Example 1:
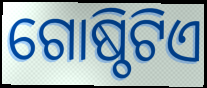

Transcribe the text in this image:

ଗୋଷ୍ଠିଟିଏ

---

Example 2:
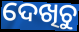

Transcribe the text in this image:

ଦେଖିଚୁ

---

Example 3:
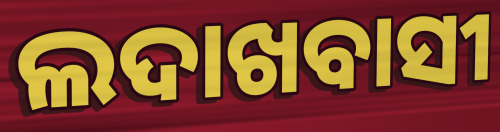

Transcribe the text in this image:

ଲଦାଖବାସୀ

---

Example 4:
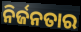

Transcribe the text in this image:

ନିର୍ଜନତାର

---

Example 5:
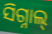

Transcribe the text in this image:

ସିଗ୍ନାଲ୍